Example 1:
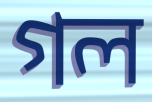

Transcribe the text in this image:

গল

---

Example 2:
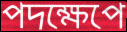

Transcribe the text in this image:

পদক্ষেপে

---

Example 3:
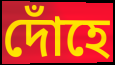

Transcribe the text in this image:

দোঁহে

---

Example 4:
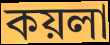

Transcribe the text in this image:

কয়লা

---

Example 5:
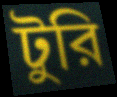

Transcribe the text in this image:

টুরি